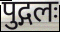
पुद्गलः